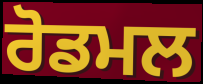
ਰੋਡਮਲ